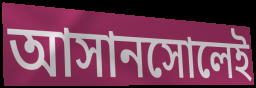
আসানসোলেই